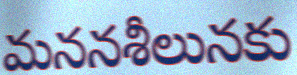
మననశీలునకు